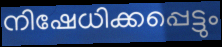
നിഷേധിക്കപ്പെട്ടും